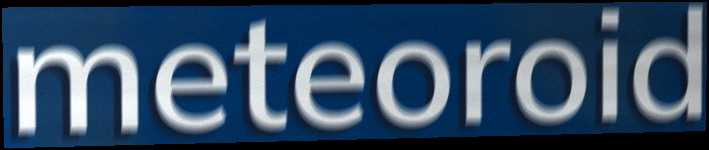
meteoroid